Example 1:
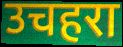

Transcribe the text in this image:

उचहरा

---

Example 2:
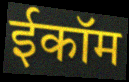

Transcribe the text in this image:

ईकॉम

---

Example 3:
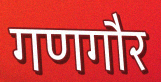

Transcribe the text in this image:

गणगौर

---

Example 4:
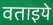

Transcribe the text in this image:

वताइये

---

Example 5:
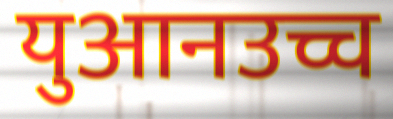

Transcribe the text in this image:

युआनउच्च